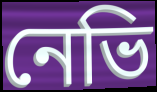
নেভি